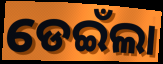
ଡେଇଁଲା